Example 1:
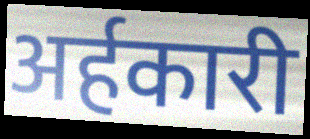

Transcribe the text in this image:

अर्हकारी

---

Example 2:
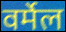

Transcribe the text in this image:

वर्मेल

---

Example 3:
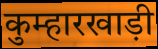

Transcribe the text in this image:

कुम्हारखाड़ी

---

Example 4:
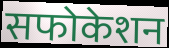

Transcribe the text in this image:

सफोकेशन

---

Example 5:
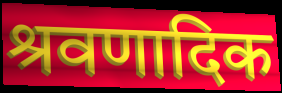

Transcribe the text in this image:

श्रवणादिक